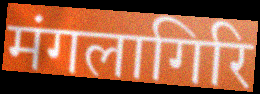
मंगलागिरि